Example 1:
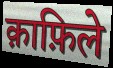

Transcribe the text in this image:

क़ाफ़िले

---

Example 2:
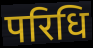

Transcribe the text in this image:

परिधि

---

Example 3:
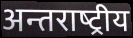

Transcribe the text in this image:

अन्तराष्ट्रीय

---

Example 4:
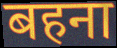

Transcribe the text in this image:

बहना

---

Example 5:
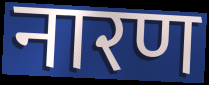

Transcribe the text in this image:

नारण